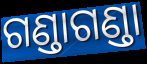
ଗଣ୍ଡାଗଣ୍ଡା